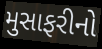
મુસાફરીનો